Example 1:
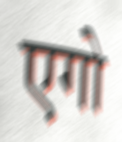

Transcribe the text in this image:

एगो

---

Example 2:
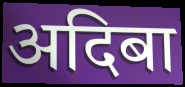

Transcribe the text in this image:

अदिबा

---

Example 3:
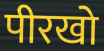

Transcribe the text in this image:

पीरखो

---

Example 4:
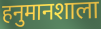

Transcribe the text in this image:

हनुमानशाला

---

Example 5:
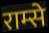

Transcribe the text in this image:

राम्से